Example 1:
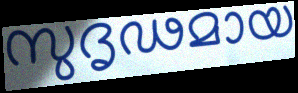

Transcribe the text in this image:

സുദൃഢമായ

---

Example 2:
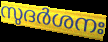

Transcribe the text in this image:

സുദർശനഃ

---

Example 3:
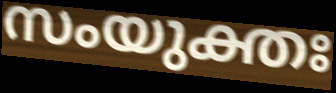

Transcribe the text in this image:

സംയുക്തഃ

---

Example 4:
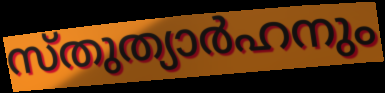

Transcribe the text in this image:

സ്തുത്യാർഹനും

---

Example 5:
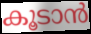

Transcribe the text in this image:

കൂടാൻ